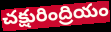
చక్షురింద్రియం